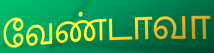
வேண்டாவா